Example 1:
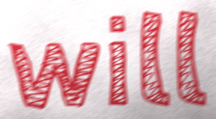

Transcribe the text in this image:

will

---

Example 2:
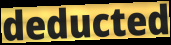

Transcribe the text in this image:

deducted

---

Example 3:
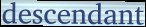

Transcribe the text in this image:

descendant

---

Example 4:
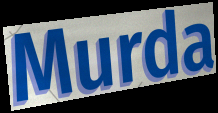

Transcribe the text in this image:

Murda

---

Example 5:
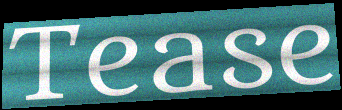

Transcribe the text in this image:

Tease